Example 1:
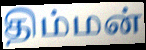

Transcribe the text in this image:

திம்மன்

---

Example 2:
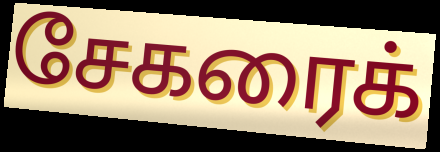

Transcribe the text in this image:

சேகரைக்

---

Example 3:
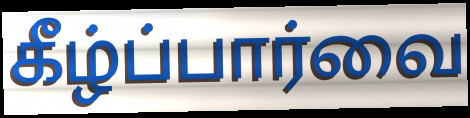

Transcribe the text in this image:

கீழ்ப்பார்வை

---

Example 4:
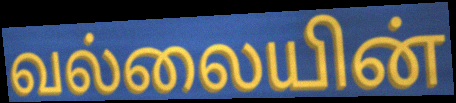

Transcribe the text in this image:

வல்லையின்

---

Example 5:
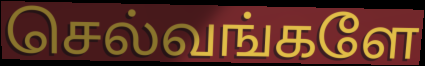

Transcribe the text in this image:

செல்வங்களே